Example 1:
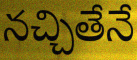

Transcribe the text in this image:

నచ్చితేనే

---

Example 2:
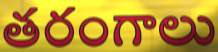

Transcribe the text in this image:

తరంగాలు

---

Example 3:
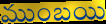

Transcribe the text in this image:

ముంబయి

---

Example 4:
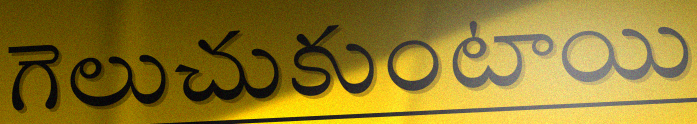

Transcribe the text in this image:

గెలుచుకుంటాయి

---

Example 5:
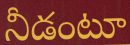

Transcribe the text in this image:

నీడంటూ